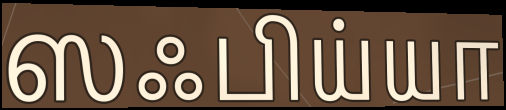
ஸஃபிய்யா